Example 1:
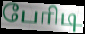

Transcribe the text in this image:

பேரிடி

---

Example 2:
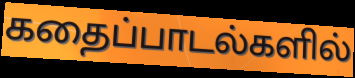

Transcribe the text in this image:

கதைப்பாடல்களில்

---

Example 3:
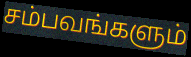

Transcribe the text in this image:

சம்பவங்களும்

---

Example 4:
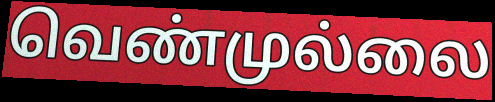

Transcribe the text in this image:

வெண்முல்லை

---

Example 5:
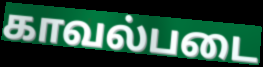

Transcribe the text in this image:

காவல்படை